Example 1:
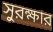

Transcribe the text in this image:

সুরক্ষার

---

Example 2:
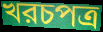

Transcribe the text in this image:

খরচপত্র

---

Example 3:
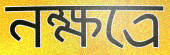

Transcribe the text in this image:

নক্ষত্রে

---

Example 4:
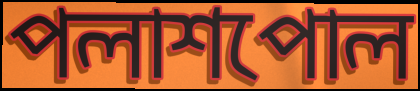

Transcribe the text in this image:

পলাশপোল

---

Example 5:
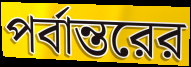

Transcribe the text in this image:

পর্বান্তরের